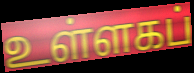
உள்ளகப்